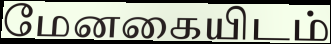
மேனகையிடம்